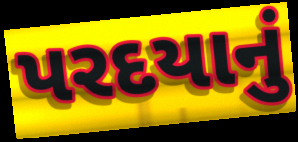
પરદયાનું